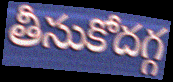
తీసుకోదగ్గ